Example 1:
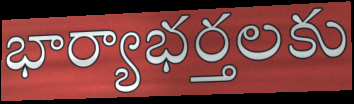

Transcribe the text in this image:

భార్యాభర్తలకు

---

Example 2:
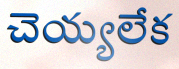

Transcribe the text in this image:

చెయ్యలేక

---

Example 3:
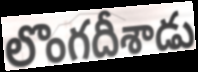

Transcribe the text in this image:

లొంగదీశాడు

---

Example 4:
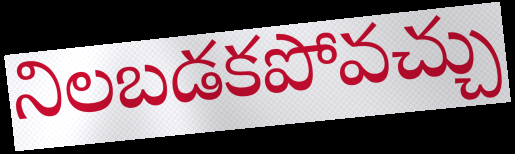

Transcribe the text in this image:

నిలబడకపోవచ్చు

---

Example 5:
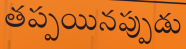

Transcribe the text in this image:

తప్పయినప్పుడు